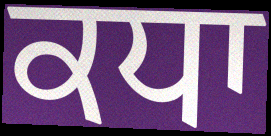
ਕਧਾ